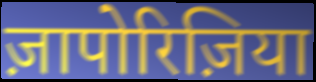
ज़ापोरिज़िया